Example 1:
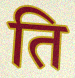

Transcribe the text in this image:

ति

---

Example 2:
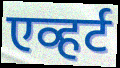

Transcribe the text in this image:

एव्हर्ट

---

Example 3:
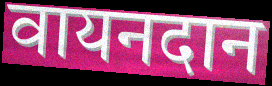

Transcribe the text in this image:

वायनदान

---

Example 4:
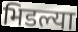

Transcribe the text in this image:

भिडल्या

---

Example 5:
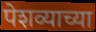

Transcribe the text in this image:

पेशव्याच्या